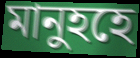
মানুহহে